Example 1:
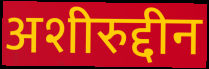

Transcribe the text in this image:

अशीरुद्दीन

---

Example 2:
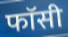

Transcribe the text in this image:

फॉसी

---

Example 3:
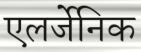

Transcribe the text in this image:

एलर्जेनिक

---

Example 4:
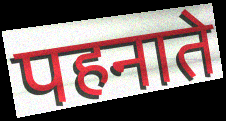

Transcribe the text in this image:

पहनाते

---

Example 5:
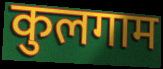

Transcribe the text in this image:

कुलगाम